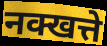
नक्खत्ते